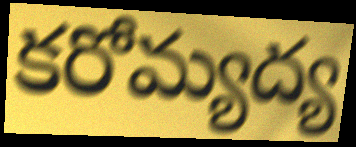
కరోమ్యద్య